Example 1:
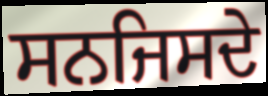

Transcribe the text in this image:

ਸਨਜਿਸਦੇ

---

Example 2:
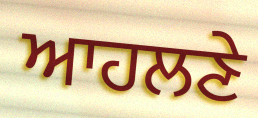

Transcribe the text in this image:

ਆਹਲਣੇ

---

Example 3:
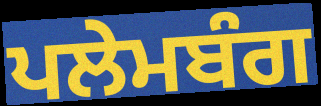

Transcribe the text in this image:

ਪਲੇਮਬੰਗ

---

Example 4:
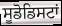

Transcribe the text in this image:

ਸੂਡੋਡਿਸਟਾਂ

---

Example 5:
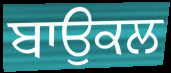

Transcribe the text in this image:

ਬਾਉਕਲ